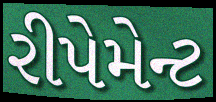
રીપેમેન્ટ